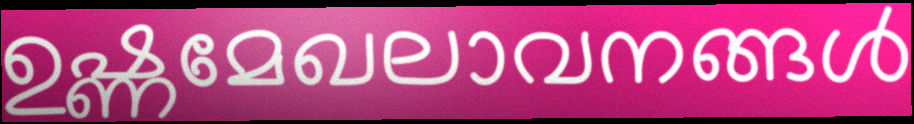
ഉഷ്ണമേഖലാവനങ്ങൾ